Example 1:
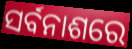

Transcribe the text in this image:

ସର୍ବନାଶରେ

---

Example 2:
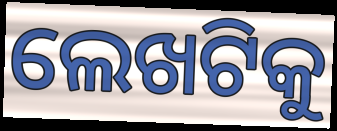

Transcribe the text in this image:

ଲେଖଟିକୁ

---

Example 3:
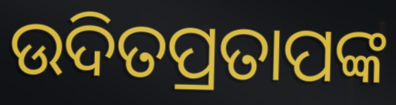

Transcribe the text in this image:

ଉଦିତପ୍ରତାପଙ୍କ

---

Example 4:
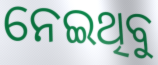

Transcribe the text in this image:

ନେଇଥିବୁ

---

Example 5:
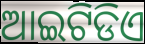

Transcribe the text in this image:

ଆଇଟିଡିଏ